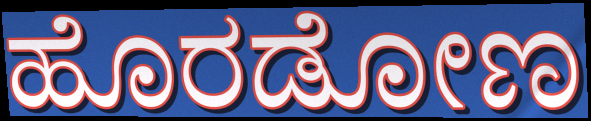
ಹೊರಡೋಣ